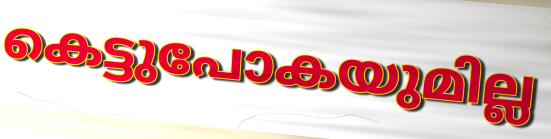
കെട്ടുപോകയുമില്ല